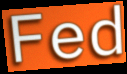
Fed